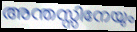
അന്തസ്സിനേയും